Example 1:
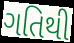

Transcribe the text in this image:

ગતિથી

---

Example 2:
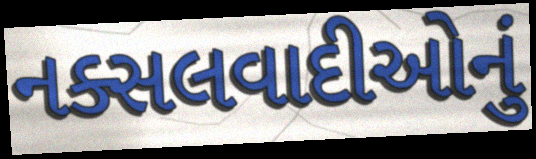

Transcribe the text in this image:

નક્સલવાદીઓનું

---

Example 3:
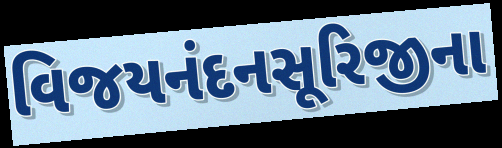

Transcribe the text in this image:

વિજયનંદનસૂરિજીના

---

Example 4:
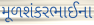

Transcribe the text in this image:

મૂળશંકરભાઈના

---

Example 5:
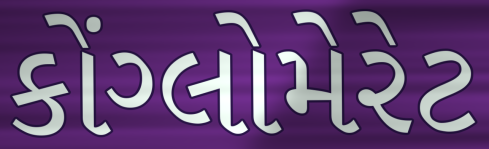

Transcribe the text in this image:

કોંગ્લોમેરેટ